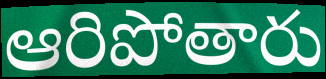
ఆరిపోతారు